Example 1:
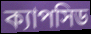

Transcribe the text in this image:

ক্যাপসিড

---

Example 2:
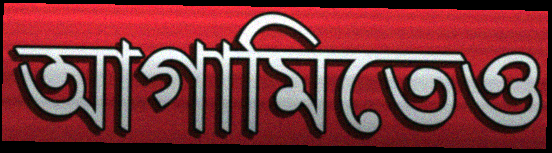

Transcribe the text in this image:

আগামিতেও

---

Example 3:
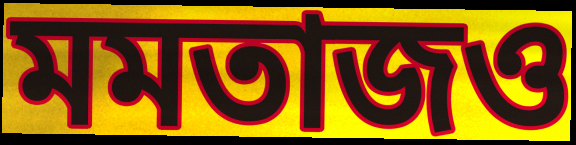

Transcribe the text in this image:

মমতাজও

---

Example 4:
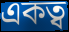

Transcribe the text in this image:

একত্ব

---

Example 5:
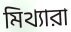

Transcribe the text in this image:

মিথ্যারা